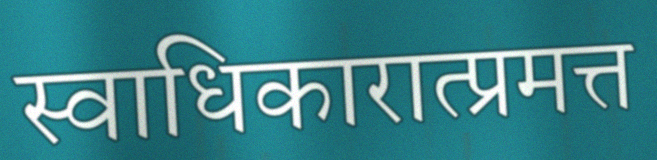
स्वाधिकारात्प्रमत्त